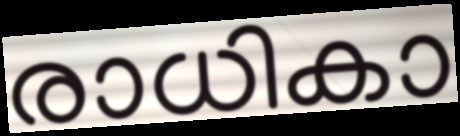
രാധികാ